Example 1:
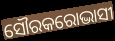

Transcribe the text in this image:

ସୌରକରୋଦ୍ଭାସୀ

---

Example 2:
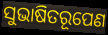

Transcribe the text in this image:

ସୁଭାଷିତରୂପେଣ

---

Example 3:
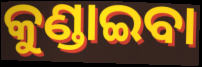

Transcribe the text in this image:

କୁଣ୍ଡାଇବା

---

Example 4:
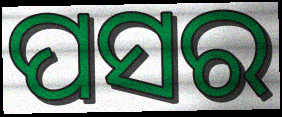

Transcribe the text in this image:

ପସର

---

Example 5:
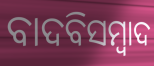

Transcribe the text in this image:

ବାଦବିସମ୍ବାଦ